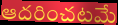
ఆదరించటమే